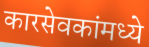
कारसेवकांमध्ये